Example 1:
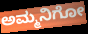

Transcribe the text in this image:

ಅಮ್ಮನಿಗೋ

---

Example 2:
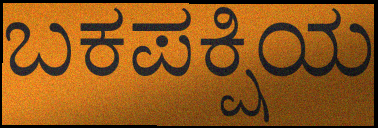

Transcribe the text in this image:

ಬಕಪಕ್ಷಿಯ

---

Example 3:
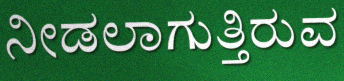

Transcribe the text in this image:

ನೀಡಲಾಗುತ್ತಿರುವ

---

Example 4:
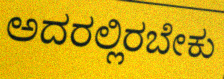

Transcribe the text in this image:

ಅದರಲ್ಲಿರಬೇಕು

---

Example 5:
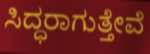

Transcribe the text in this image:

ಸಿದ್ಧರಾಗುತ್ತೇವೆ